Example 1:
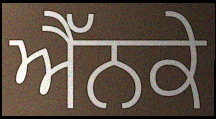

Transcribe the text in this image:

ਐੱਨਕੇ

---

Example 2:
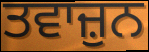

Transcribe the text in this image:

ਤਵਾਜ਼ੁਨ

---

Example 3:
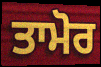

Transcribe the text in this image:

ਤਾਮੋਰ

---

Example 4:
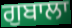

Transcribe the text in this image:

ਗੁਬਾਲਾ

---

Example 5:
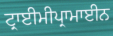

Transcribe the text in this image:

ਟ੍ਰਾਈਮੀਪ੍ਰਾਮਾਈਨ